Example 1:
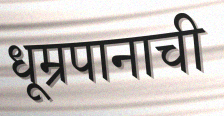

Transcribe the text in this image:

धूम्रपानाची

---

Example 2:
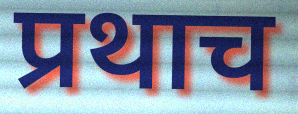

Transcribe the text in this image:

प्रथाच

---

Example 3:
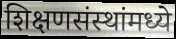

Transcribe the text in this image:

शिक्षणसंस्थांमध्ये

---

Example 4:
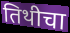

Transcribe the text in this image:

तिथीचा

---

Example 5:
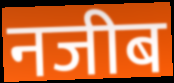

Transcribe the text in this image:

नजीब